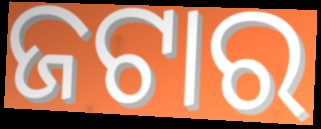
ଜଟାର